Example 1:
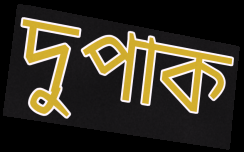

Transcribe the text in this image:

দুপাক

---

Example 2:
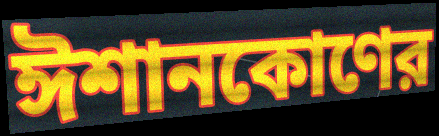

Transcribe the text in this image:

ঈশানকোণের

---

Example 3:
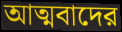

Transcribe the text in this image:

আত্মবাদের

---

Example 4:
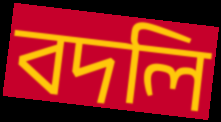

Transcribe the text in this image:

বদলি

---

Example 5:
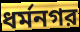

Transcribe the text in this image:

ধর্মনগর